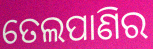
ତେଲପାଣିର